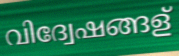
വിദ്വേഷങ്ങള്